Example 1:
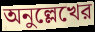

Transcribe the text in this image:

অনুল্লেখের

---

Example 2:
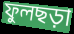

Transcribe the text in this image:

ফুলছড়া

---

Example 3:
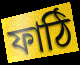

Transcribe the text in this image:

ফাঠি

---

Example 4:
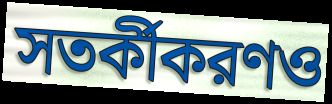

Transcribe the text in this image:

সতর্কীকরণও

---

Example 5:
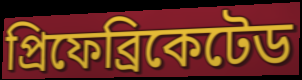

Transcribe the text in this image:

প্রিফেব্রিকেটেড